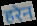
हरेन